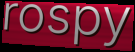
rospy